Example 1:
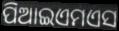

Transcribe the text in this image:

ପିଆଇଏମଏସ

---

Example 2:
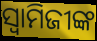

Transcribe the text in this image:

ସ୍ବାମିଜୀଙ୍କ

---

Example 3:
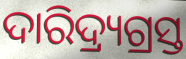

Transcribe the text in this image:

ଦାରିଦ୍ର୍ୟଗ୍ରସ୍ତ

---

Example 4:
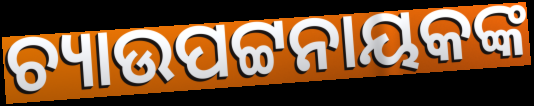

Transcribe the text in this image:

ଚ୍ୟାଉପଟ୍ଟନାୟକଙ୍କ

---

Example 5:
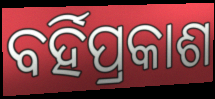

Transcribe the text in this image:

ବର୍ହିପ୍ରକାଶ